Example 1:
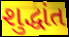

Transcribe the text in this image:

શુદ્ધાંત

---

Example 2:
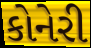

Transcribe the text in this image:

કોનેરી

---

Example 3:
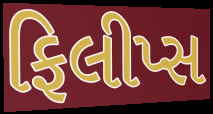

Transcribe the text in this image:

ફિલીપ્સ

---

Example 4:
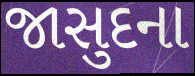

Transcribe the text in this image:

જાસુદના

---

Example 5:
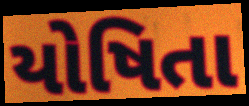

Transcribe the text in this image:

યોષિતા